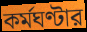
কর্মঘণ্টার